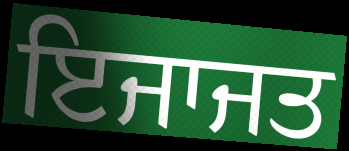
ਇਜਾਜਤ